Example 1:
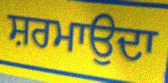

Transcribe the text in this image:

ਸ਼ਰਮਾਉਦਾ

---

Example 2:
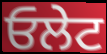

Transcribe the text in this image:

ਓਲੇਟ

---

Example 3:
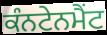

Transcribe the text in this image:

ਕੰਨਟੇਨਮੈਂਟ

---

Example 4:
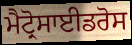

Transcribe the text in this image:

ਮੈਟ੍ਰੋਸਾਈਡਰੋਸ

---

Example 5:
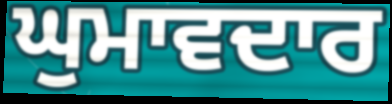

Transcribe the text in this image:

ਘੁਮਾਵਦਾਰ